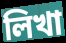
লিখা